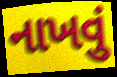
નાખવું